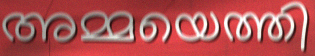
അമ്മയെത്തി